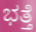
ಭತ್ತೆ